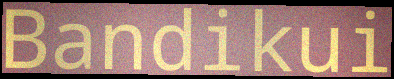
Bandikui